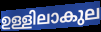
ഉള്ളിലാകുല